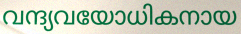
വന്ദ്യവയോധികനായ